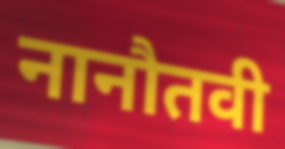
नानौतवी